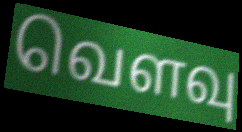
வெளவு